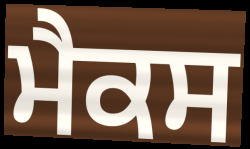
ਮੈਕਸ